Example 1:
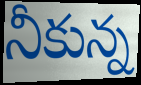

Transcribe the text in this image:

నీకున్న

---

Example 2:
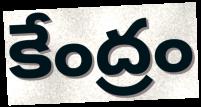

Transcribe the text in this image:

కేంద్రం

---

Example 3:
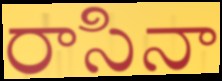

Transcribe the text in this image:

రాసినా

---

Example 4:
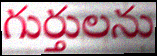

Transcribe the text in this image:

గుర్తులను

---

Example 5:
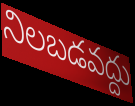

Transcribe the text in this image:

నిలబడవద్దు